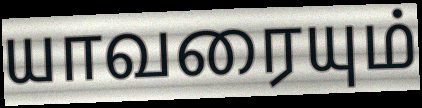
யாவரையும்